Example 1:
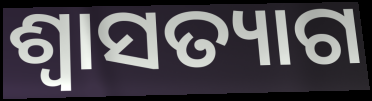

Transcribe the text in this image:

ଶ୍ବାସତ୍ୟାଗ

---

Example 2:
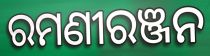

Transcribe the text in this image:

ରମଣୀରଞ୍ଜନ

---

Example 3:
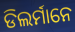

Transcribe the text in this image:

ଡିଲର୍ମାନେ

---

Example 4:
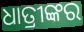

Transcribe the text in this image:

ଧାତ୍ରୀଙ୍କର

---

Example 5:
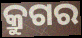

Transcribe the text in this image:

କ୍ରୁଗର